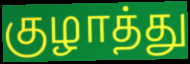
குழாத்து